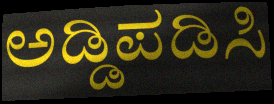
ಅಡ್ಡಿಪಡಿಸಿ